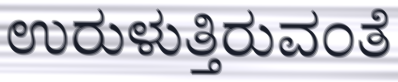
ಉರುಳುತ್ತಿರುವಂತೆ